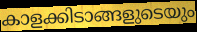
കാളക്കിടാങ്ങളുടെയും